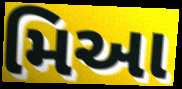
મિઆ